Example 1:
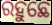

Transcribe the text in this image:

ରହୁଛେ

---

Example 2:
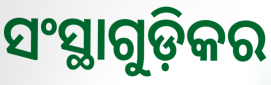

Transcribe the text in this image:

ସଂସ୍ଥାଗୁଡ଼ିକର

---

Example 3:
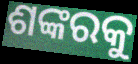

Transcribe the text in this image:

ଶଙ୍କରକୁ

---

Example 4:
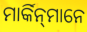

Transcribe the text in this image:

ମାର୍କିନ୍‌ମାନେ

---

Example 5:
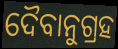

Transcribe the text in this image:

ଦୈବାନୁଗ୍ରହ